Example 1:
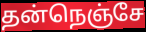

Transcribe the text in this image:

தன்நெஞ்சே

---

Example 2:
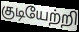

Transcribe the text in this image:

குடியேற்றி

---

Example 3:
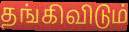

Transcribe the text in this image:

தங்கிவிடும்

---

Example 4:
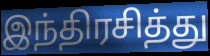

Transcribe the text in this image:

இந்திரசித்து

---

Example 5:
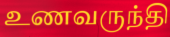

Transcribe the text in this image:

உணவருந்தி